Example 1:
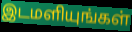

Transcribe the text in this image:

இடமளியுங்கள்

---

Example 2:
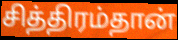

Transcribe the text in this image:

சித்திரம்தான்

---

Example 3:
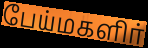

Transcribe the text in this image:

பேய்மகளிர்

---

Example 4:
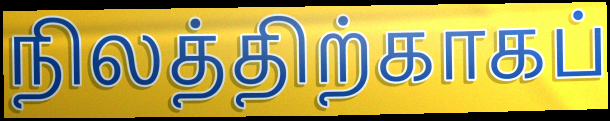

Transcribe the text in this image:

நிலத்திற்காகப்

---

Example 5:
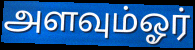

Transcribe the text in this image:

அளவும்ஓர்